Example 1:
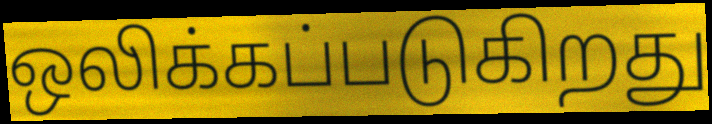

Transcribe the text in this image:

ஒலிக்கப்படுகிறது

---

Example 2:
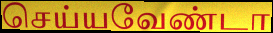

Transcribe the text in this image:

செய்யவேண்டா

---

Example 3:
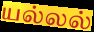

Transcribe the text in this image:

யல்லல்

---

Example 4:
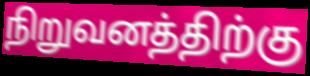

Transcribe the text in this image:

நிறுவனத்திற்கு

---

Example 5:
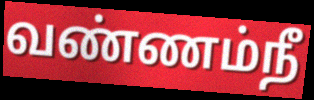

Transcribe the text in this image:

வண்ணம்நீ